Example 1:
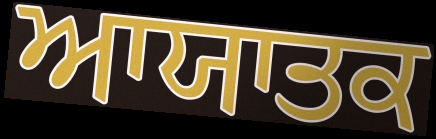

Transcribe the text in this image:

ਆਯਾਤਕ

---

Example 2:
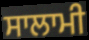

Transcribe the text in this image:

ਸਾਲਾਮੀ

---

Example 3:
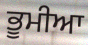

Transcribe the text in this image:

ਭੂਮੀਆ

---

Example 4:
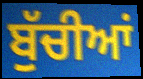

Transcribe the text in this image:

ਬੁੱਚੀਆਂ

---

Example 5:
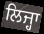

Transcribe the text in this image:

ਲਿਜ੍ਹਾ